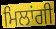
ਮਿਲਾਂਗੀ